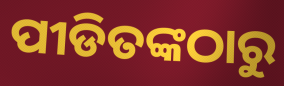
ପୀଡିତଙ୍କଠାରୁ